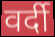
वर्दी